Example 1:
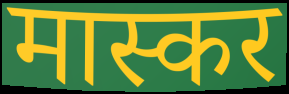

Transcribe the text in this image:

मास्कर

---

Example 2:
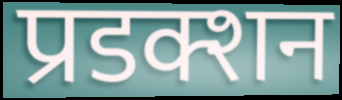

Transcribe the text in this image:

प्रडक्शन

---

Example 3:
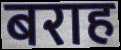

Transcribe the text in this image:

बराह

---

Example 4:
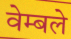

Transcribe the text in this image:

वेम्बले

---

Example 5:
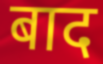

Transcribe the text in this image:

बाद